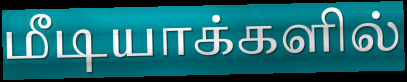
மீடியாக்களில்